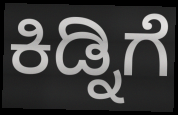
ಕಿಡ್ನಿಗೆ